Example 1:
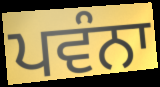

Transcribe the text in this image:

ਪਵੰਨਾ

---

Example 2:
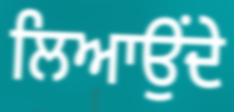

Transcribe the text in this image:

ਲਿਆਉਂਦੇ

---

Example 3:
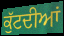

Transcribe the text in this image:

ਕੁੱਟਦੀਆਂ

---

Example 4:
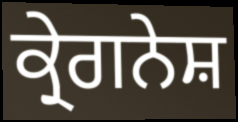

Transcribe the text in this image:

ਕ੍ਰੇਗਨੇਸ਼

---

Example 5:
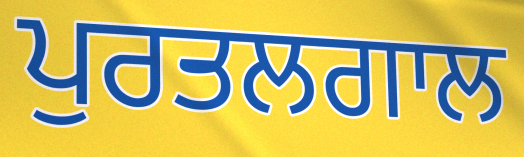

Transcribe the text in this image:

ਪੁਰਤਲਗਾਲ